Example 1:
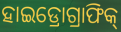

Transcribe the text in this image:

ହାଇଡ୍ରୋଗ୍ରାଫିକ୍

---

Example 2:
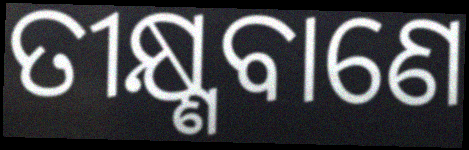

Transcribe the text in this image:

ତୀକ୍ଷ୍ଣବାଣେ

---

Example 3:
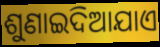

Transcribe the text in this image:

ଶୁଣାଇଦିଆଯାଏ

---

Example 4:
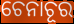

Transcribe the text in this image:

ଚେନାଚୂର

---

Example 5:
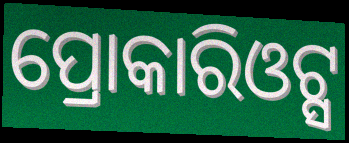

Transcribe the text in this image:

ପ୍ରୋକାରିଓଟ୍ସ